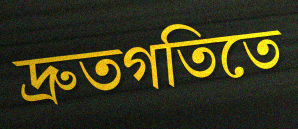
দ্রুতগতিতে